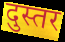
दुस्तर